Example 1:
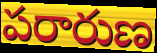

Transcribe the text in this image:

పరారుణ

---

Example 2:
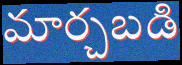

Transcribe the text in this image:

మార్చబడి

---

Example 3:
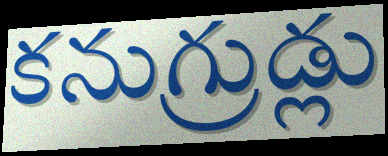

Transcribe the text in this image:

కనుగ్రుడ్లు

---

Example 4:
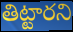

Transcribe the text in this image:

తిట్టారని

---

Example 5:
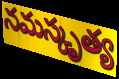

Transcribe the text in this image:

నమస్కృత్య